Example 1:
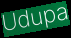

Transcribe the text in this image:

Udupa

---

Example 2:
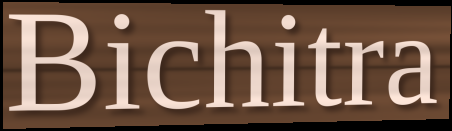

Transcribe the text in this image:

Bichitra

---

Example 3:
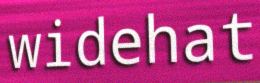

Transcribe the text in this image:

widehat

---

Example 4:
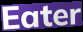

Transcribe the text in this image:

Eater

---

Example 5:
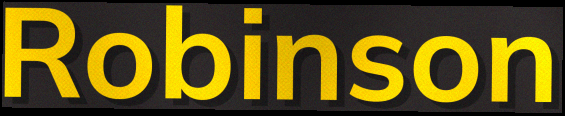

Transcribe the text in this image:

Robinson